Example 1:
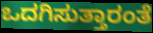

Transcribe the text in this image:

ಒದಗಿಸುತ್ತಾರಂತೆ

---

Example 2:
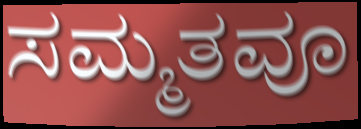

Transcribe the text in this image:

ಸಮ್ಮತವೂ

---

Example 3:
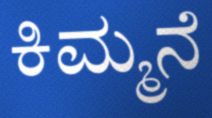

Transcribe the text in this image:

ಕಿಮ್ಮನೆ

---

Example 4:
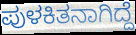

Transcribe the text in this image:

ಪುಳಕಿತನಾಗಿದ್ದೆ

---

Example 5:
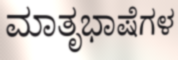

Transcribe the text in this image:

ಮಾತೃಭಾಷೆಗಳ